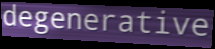
degenerative